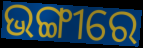
ଭଙ୍ଗୀରେ